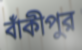
বাঁকীপুর